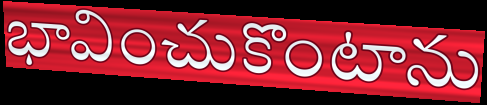
భావించుకొంటాను